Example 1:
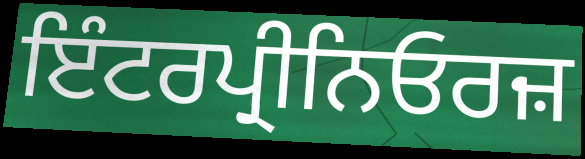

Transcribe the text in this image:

ਇੰਟਰਪ੍ਰੀਨਿਓਰਜ਼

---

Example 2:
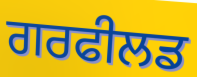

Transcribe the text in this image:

ਗਰਫੀਲਡ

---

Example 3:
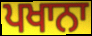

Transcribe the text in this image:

ਪਖਾਨਾ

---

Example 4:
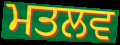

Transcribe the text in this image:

ਮਤਲਵ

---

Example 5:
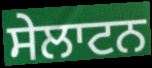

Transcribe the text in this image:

ਸੇਲਾਟਨ